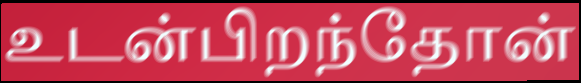
உடன்பிறந்தோன்